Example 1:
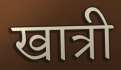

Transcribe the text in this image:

खात्री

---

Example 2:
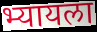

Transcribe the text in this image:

भ्यायला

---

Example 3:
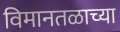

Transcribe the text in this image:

विमानतळाच्या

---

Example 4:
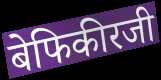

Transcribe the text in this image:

बेफिकीरजी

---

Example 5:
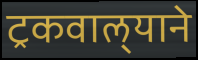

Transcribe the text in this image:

ट्रकवाल्याने